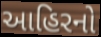
આહિરનો